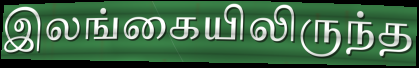
இலங்கையிலிருந்த